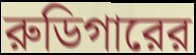
রুডিগারের